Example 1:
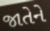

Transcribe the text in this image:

જાતેને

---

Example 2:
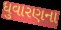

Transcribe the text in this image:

ધુવારણના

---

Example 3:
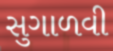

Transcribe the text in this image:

સુગાળવી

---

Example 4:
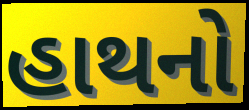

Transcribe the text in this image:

હાથનો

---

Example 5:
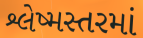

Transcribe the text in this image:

શ્લેષ્મસ્તરમાં